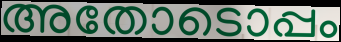
അതോടൊപ്പം